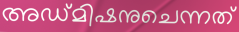
അഡ്മിഷനുചെന്നത്